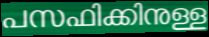
പസഫിക്കിനുള്ള